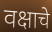
वक्षाचे